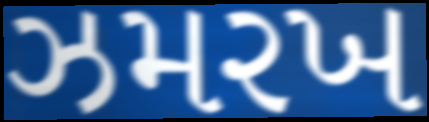
ઝમરખ